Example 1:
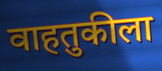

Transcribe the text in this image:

वाहतुकीला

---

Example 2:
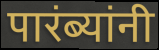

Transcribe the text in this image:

पारंब्यांनी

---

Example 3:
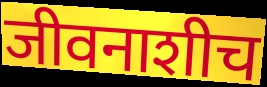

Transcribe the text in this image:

जीवनाशीच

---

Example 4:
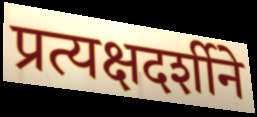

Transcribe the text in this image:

प्रत्यक्षदर्शीने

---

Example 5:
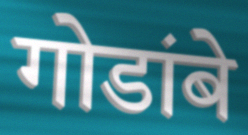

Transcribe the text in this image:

गोडांबे